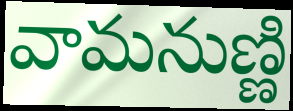
వామనుణ్ణి